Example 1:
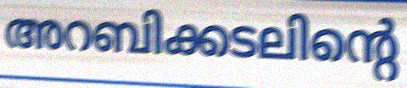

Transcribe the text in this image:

അറബിക്കടലിന്റെ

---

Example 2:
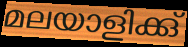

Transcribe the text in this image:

മലയാളിക്കു്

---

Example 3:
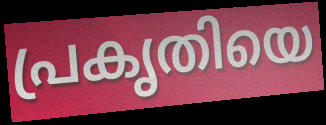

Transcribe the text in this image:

പ്രകൃതിയെ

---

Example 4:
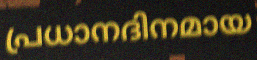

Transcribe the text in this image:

പ്രധാനദിനമായ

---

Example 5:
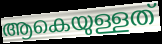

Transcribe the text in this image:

ആകെയുള്ളത്